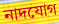
নাদযোগ